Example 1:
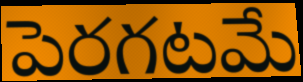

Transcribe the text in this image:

పెరగటమే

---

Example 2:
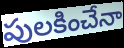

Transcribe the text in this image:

పులకించేనా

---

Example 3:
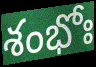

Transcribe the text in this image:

శంభోః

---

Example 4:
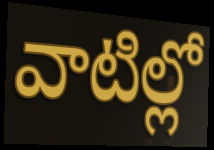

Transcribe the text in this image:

వాటిల్లో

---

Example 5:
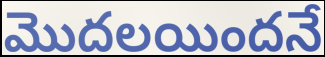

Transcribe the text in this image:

మొదలయిందనే